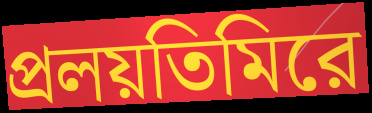
প্রলয়তিমিরে